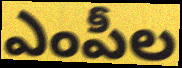
ఎంపీల